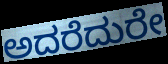
ಅದರೆದುರೇ